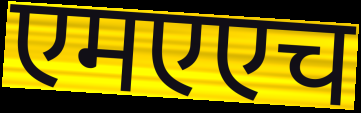
एमएएच